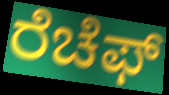
ರೆಚೆಫ್